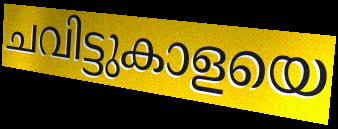
ചവിട്ടുകാളയെ